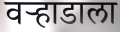
वऱ्हाडाला